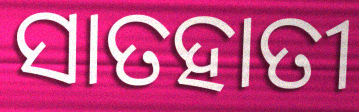
ସାତହାତୀ